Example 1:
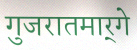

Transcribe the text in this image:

गुजरातमार्गे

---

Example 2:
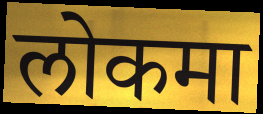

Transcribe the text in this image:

लोकमा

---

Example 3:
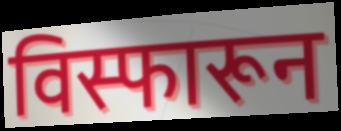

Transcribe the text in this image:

विस्फारून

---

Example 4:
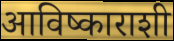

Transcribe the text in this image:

आविष्काराशी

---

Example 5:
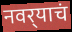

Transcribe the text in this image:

नवर्‍याचं